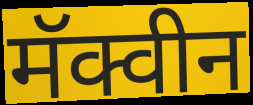
मॅक्वीन